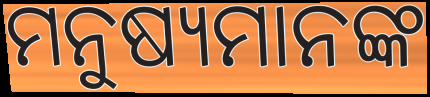
ମନୁଷ୍ୟମାନଙ୍କ